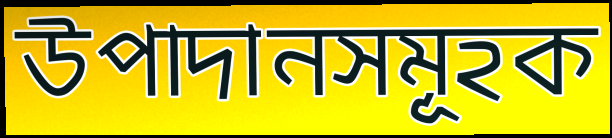
উপাদানসমূহক